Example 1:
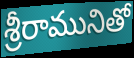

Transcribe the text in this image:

శ్రీరామునితో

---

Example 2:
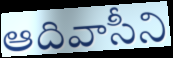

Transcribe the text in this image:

ఆదివాసీని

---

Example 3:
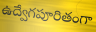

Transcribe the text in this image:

ఉద్వేగపూరితంగా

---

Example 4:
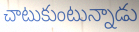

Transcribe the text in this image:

చాటుకుంటున్నాడు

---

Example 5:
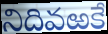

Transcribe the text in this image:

నిదివఱకే